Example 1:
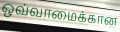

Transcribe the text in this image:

ஒவ்வாமைக்கான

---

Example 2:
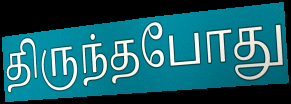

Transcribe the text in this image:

திருந்தபோது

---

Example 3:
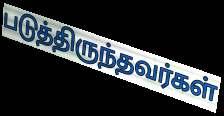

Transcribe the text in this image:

படுத்திருந்தவர்கள்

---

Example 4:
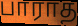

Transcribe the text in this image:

பாராத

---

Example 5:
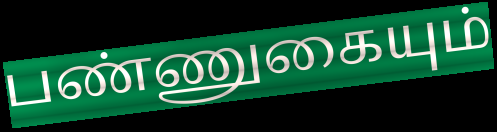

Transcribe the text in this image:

பண்ணுகையும்